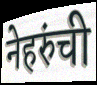
नेहरुंची